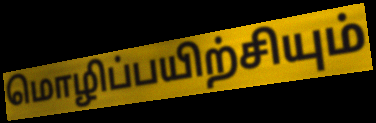
மொழிப்பயிற்சியும்